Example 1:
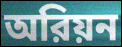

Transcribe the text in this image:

অরিয়ন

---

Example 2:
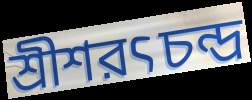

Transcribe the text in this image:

শ্রীশরৎচন্দ্র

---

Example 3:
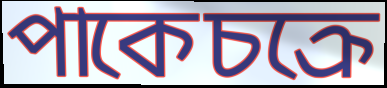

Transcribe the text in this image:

পাকেচক্রে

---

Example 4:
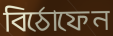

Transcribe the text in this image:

বিঠোফেন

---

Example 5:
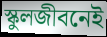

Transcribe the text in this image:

স্কুলজীবনেই